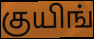
குயிங்